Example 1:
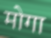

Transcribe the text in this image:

मोगा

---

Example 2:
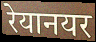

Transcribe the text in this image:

रेयानयर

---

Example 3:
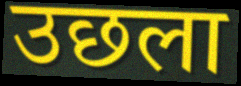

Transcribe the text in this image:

उछला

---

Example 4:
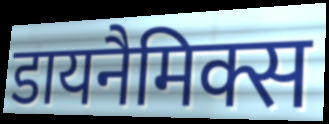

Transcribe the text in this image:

डायनैमिक्स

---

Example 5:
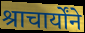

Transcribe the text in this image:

श्राचार्योंने